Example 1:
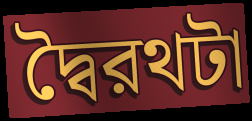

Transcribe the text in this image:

দ্বৈরথটা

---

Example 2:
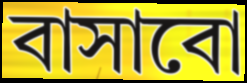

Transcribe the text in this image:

বাসাবো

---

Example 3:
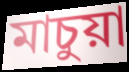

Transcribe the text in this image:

মাচুয়া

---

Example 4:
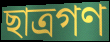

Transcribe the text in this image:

ছাত্রগণ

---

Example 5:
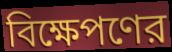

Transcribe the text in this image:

বিক্ষেপণের